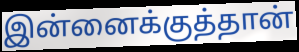
இன்னைக்குத்தான்